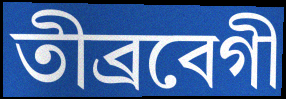
তীব্ৰবেগী